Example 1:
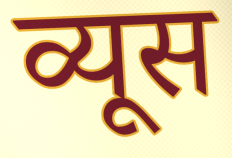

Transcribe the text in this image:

व्यूस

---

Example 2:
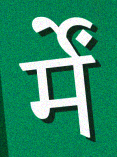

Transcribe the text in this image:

र्में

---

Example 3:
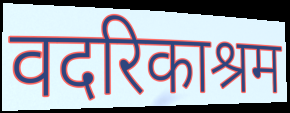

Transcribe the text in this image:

वदरिकाश्रम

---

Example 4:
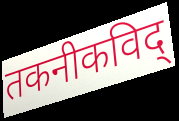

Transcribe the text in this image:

तकनीकविद्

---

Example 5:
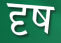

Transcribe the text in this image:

दृष